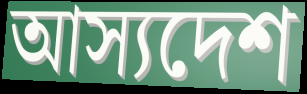
আস্যদেশ